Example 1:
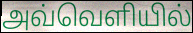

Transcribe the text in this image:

அவ்வெளியில்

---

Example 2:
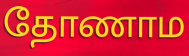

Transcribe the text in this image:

தோணாம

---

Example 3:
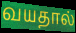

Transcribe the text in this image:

வயதால்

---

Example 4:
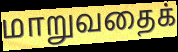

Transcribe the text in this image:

மாறுவதைக்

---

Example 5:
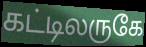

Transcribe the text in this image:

கட்டிலருகே